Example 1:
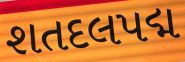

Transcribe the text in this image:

શતદલપદ્મ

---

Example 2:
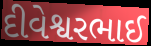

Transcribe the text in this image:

દીવેશ્વરભાઈ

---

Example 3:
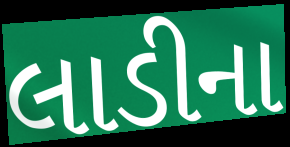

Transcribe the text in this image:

લાડીના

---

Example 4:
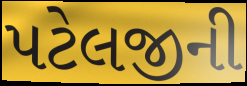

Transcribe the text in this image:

પટેલજીની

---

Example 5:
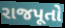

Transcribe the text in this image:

રાજપૂતો